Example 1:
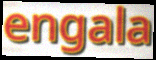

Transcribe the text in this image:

engala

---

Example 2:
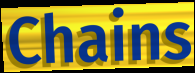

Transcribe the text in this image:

Chains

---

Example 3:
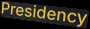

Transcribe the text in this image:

Presidency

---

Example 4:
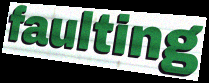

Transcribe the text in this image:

faulting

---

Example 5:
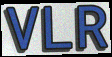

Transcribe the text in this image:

VLR